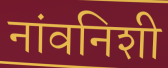
नांवनिशी